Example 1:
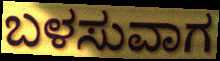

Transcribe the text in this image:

ಬಳಸುವಾಗ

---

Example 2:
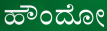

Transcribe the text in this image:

ಹೌಂದೋ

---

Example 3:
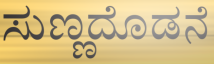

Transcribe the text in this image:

ಸುಣ್ಣದೊಡನೆ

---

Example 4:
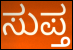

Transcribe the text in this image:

ಸುಪ್ತ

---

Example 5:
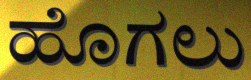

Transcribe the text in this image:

ಹೊಗಲು